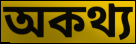
অকথ্য